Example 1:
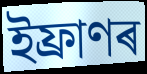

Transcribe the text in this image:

ইফ্ৰাণৰ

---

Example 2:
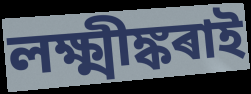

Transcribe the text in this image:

লক্ষ্মীঙ্কৰাই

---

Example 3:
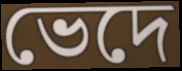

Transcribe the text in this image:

ভেদে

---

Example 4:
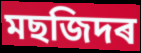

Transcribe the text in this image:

মছজিদৰ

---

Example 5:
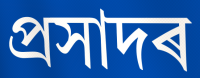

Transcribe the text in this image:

প্ৰসাদৰ